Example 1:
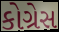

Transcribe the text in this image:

કોગ્રેસ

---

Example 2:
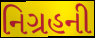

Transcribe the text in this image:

નિગ્રહની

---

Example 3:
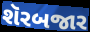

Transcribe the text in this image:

શૅરબજાર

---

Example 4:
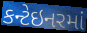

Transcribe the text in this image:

કન્ટેઇનરમાં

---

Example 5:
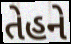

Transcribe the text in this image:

તેહને